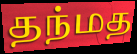
தந்மத